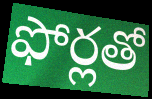
ఫోర్లతో